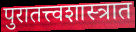
पुरातत्त्वशास्त्रात